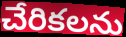
చేరికలను